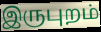
இருபுறம்